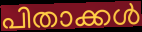
പിതാക്കൾ